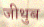
जीथुब